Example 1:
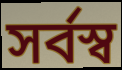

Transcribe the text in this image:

সর্বস্ব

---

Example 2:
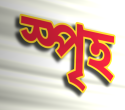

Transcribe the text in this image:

স্পৃহ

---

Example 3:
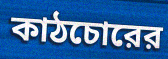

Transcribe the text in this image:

কাঠচোরের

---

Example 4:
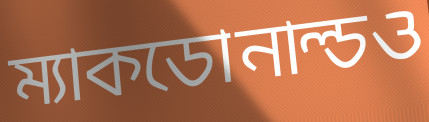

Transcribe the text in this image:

ম্যাকডোনাল্ডও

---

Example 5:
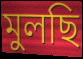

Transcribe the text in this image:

মুলছি